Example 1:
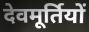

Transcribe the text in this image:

देवमूर्तियों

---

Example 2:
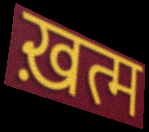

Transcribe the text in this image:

ख़त्‍म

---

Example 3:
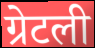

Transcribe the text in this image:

ग्रेटली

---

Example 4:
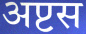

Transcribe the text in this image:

अप्टस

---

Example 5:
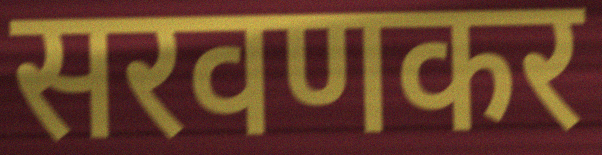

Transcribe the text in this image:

सरवणकर